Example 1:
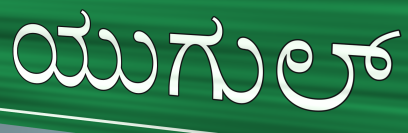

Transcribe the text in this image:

ಯುಗುಲ್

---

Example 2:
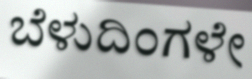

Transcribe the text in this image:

ಬೆಳುದಿಂಗಳೇ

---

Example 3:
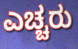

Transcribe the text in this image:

ಎಚ್ಚರು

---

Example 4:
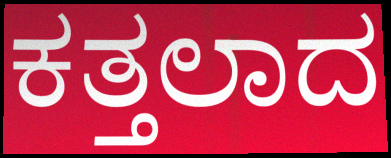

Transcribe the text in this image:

ಕತ್ತಲಾದ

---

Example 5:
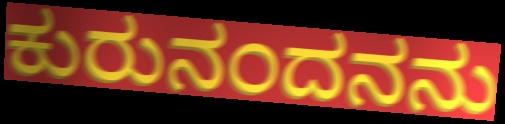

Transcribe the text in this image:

ಕುರುನಂದನನು